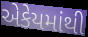
એકેયમાંથી